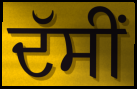
ਦੱਸੀਂ